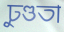
ঢুণ্ডতা